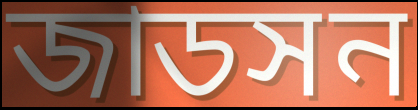
জাডসন